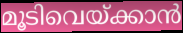
മൂടിവെയ്ക്കാൻ